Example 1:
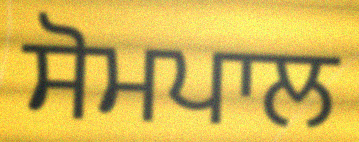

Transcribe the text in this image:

ਸੋਮਪਾਲ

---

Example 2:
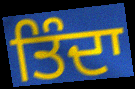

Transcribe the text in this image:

ਤਿੰਦਾ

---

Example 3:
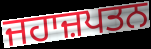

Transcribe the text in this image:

ਜਹਾਜ਼ਪਤਨ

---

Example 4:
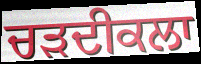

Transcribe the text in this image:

ਚੜਦੀਕਲਾ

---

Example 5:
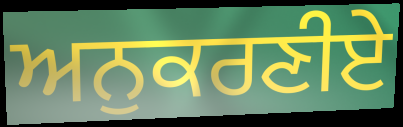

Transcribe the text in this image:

ਅਨੁਕਰਣੀਏ